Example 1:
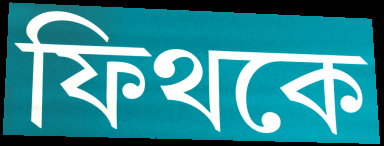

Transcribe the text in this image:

ফিথকে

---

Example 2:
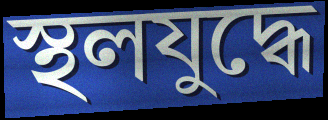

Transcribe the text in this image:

স্থলযুদ্ধে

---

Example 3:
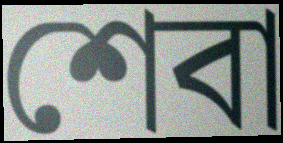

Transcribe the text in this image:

শেবা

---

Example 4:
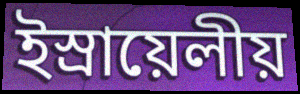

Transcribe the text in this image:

ইস্রায়েলীয়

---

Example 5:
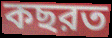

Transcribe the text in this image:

কছরত